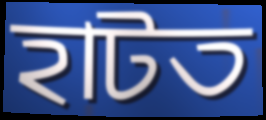
হাটত